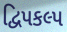
દ્વિપકલ્પ